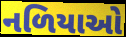
નળિયાઓ